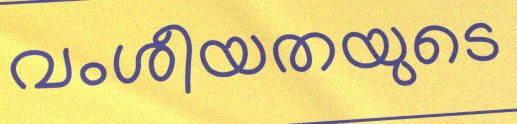
വംശീയതയുടെ